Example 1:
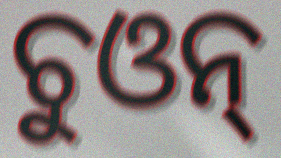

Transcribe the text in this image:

ଚୁଓନ୍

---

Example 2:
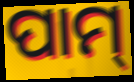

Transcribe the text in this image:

ପାମ୍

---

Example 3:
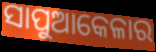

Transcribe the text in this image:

ସାପୁଆକେଳାର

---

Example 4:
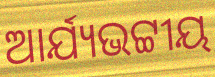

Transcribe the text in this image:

ଆର୍ଯ୍ୟଭଟ୍ଟୀୟ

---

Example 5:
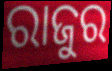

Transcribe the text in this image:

ରାଜୁର